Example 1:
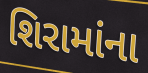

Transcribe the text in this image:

શિરામાંના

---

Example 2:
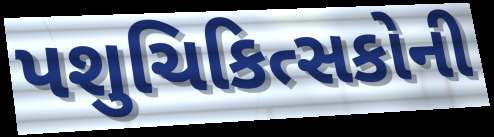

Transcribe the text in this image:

પશુચિકિત્સકોની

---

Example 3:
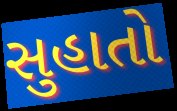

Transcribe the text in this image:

સુહાતો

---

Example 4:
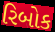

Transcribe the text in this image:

રિબોક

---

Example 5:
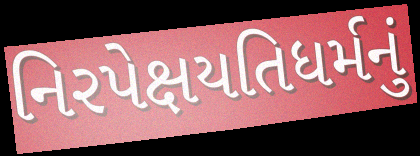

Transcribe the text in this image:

નિરપેક્ષયતિધર્મનું